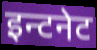
इन्टनेट